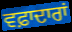
ਵਫ਼ਾਦਾਰਾਂ